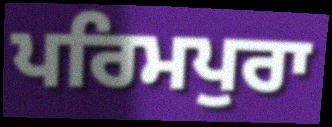
ਪਰਿਮਪੁਰਾ